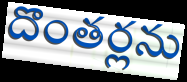
దొంతర్లను